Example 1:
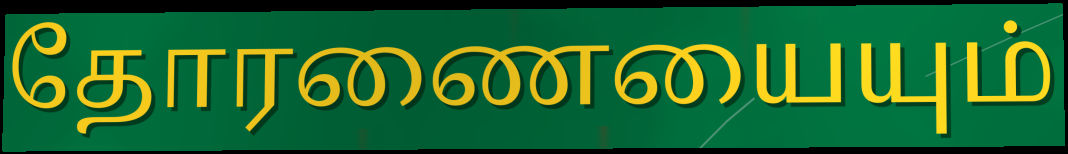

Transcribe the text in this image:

தோரணையையும்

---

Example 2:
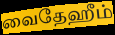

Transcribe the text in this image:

வைதேஹீம்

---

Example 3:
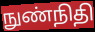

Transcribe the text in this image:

நுண்நிதி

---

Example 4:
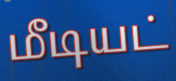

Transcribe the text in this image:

மீடியட்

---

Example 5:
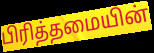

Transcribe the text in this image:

பிரித்தமையின்